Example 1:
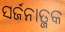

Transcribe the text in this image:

ସର୍ଜନାତ୍ଜକ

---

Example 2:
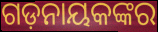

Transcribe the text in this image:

ଗଡ଼ନାୟକଙ୍କର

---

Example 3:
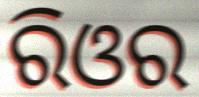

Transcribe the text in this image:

ରିଓର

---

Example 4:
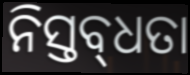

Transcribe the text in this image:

ନିସ୍ତବ୍‌ଧତା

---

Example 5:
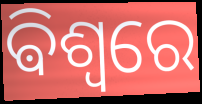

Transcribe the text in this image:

ଵିଶ୍ଵରେ